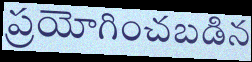
ప్రయోగించబడిన